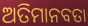
ଅତିମାନବତା